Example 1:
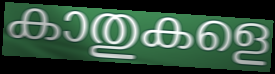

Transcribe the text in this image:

കാതുകളെ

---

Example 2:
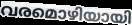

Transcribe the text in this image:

വരമൊഴിയായി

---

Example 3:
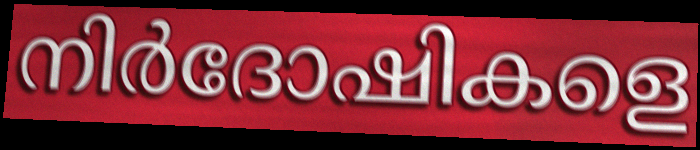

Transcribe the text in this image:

നിർദോഷികളെ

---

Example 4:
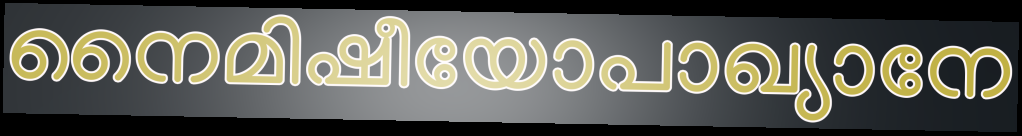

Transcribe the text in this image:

നൈമിഷീയോപാഖ്യാനേ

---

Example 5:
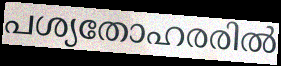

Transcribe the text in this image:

പശ്യതോഹരരിൽ